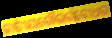
ଜାତୀୟଗୌରବବୋଧର